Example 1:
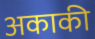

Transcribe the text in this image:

अकाकी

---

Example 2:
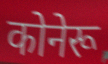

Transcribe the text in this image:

कोनेरू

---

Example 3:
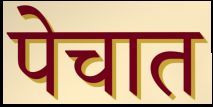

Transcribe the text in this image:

पेचात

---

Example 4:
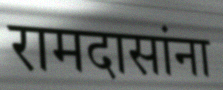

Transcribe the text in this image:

रामदासांना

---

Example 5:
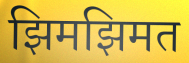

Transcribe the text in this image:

झिमझिमत